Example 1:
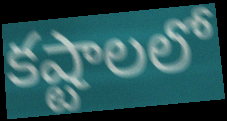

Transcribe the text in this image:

కష్టాలలో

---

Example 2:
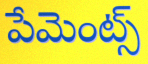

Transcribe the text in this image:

పేమెంట్స్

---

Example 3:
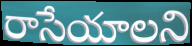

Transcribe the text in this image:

రాసేయాలని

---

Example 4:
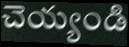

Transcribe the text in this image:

చెయ్యండి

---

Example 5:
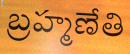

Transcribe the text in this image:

బ్రహ్మణేతి